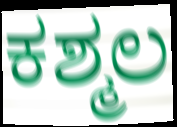
ಕಶ್ಮಲ